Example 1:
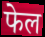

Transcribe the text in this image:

फेल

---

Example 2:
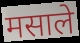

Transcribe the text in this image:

मसाले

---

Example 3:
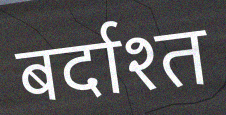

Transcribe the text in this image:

बर्दाश्त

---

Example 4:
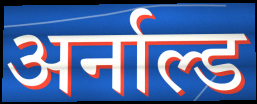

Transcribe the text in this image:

अर्नाल्ड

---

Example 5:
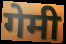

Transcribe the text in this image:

गेमी